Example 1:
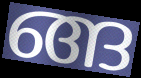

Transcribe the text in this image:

ങ്ങ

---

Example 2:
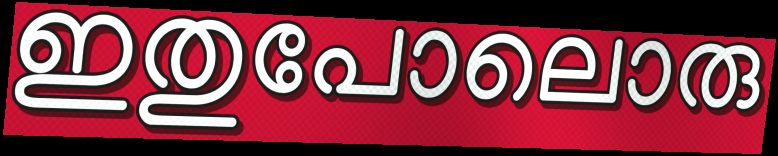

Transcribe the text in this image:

ഇതുപോലൊരു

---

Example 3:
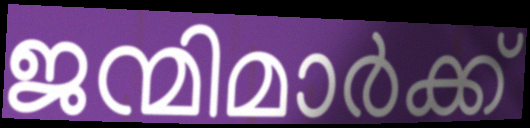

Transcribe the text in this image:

ജന്മിമാർക്ക്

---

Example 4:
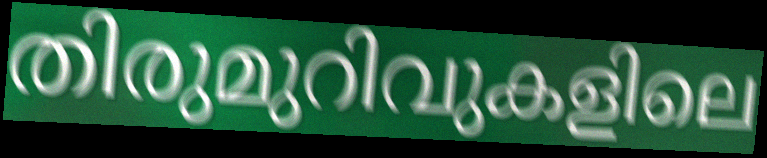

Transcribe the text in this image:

തിരുമുറിവുകളിലെ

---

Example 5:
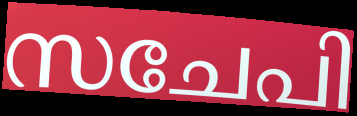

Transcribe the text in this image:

സചേപി